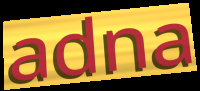
adna